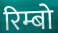
रिम्बो